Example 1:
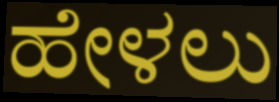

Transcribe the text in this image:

ಹೇಳಲು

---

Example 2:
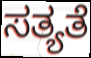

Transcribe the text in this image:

ಸತ್ಯತೆ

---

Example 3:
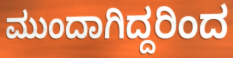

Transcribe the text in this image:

ಮುಂದಾಗಿದ್ದರಿಂದ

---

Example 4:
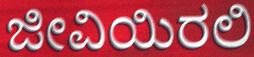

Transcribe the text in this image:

ಜೀವಿಯಿರಲಿ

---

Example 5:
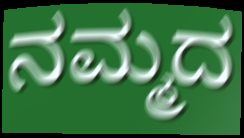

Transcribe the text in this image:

ನಮ್ಮದ